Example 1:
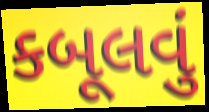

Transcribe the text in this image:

કબૂલવું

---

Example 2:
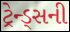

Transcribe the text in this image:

ટ્રેન્ડ્સની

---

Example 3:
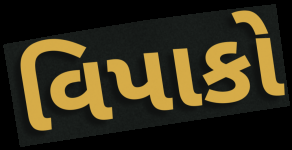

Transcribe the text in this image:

વિપાકો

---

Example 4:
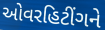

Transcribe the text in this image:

ઓવરહિટીંગને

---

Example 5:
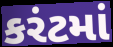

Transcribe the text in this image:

કરંટમાં